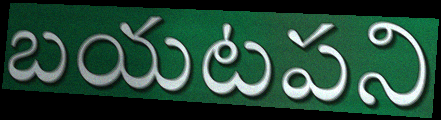
బయటపని